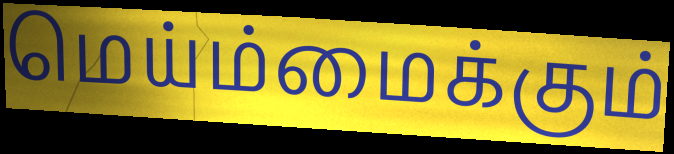
மெய்ம்மைக்கும்